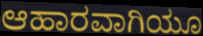
ಆಹಾರವಾಗಿಯೂ